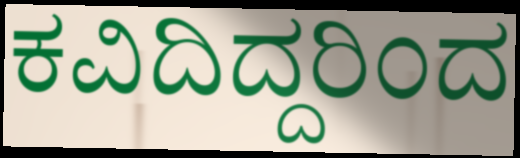
ಕವಿದಿದ್ದರಿಂದ